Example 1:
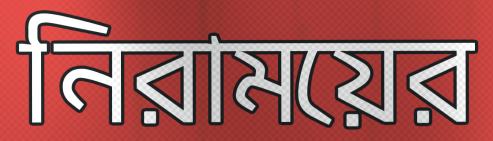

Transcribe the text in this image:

নিরাময়ের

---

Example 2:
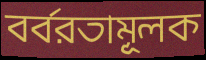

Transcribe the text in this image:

বর্বরতামূলক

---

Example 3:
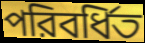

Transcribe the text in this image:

পরিবর্ধিত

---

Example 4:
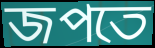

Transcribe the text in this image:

জপতে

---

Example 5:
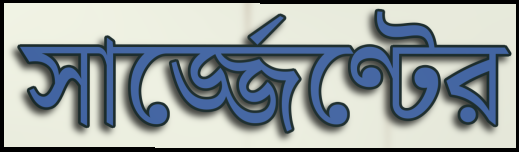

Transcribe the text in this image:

সার্জ্জেণ্টের